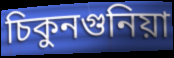
চিকুনগুনিয়া